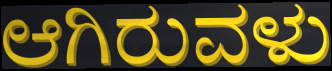
ಆಗಿರುವಳು